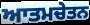
ਆਤਮਚੇਤਨ